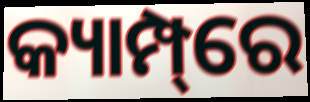
କ୍ୟାମ୍ପ୍‌ରେ